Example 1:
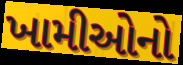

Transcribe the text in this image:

ખામીઓનો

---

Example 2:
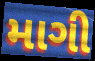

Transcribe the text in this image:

માગી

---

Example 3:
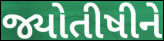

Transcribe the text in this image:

જ્યોતીષીને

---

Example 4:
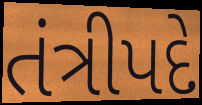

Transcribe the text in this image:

તંત્રીપદે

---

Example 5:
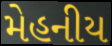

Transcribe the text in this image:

મેહનીય